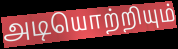
அடியொற்றியும்